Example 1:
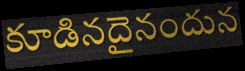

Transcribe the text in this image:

కూడినదైనందున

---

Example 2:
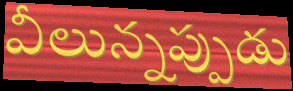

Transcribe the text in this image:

వీలున్నప్పుడు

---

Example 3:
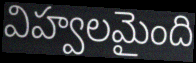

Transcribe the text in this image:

విహ్వలమైంది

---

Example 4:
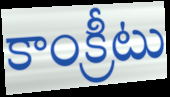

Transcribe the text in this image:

కాంక్రీటు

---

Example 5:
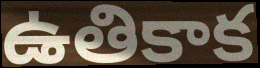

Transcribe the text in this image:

ఉతికాక